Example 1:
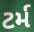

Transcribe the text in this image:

ટર્મ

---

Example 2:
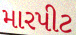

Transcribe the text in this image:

મારપીટ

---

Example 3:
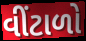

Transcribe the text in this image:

વીંટાળો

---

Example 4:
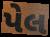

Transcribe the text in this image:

પેલ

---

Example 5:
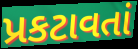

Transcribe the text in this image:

પ્રકટાવતાં